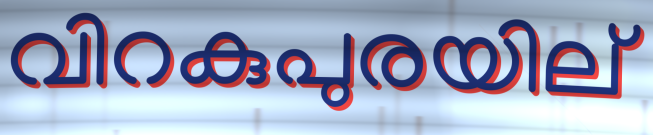
വിറകുപുരയില്